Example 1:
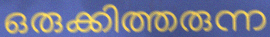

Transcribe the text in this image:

ഒരുക്കിത്തരുന്ന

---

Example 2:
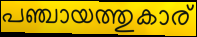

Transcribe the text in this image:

പഞ്ചായത്തുകാര്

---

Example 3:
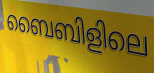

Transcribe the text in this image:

ബൈബിളിലെ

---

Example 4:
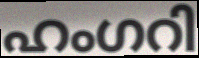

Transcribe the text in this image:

ഹംഗറി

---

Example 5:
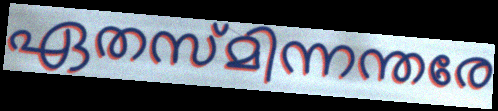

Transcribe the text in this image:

ഏതസ്മിന്നന്തരേ